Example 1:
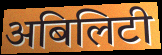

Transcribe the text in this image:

अबिलिटी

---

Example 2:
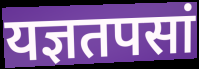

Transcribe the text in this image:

यज्ञतपसां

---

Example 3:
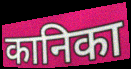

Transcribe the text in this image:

कानिका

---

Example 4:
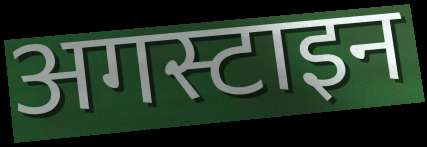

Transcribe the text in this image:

अगस्टाइन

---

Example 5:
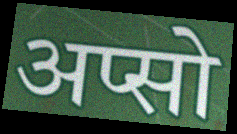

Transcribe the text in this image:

अप्सो